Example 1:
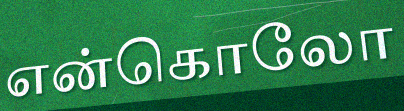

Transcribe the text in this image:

என்கொலோ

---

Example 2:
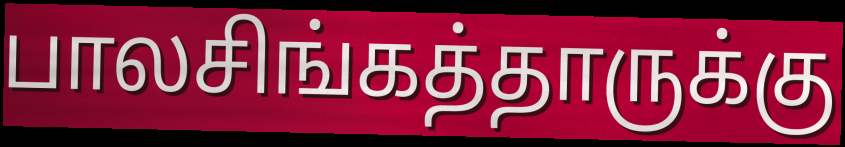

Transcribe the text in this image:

பாலசிங்கத்தாருக்கு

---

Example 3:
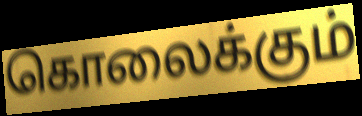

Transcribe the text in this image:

கொலைக்கும்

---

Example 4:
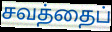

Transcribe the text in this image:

சவத்தைப்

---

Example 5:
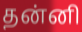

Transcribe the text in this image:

தன்னி